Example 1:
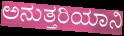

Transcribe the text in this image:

ಅನುತ್ತರಿಯಾನಿ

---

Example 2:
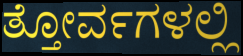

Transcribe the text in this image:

ತ್ತೋರ್ವಗಳಲ್ಲಿ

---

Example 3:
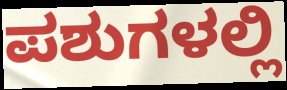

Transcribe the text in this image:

ಪಶುಗಳಲ್ಲಿ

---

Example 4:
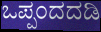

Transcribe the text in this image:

ಒಪ್ಪಂದದಡಿ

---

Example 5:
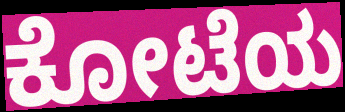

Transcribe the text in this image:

ಕೋಟೆಯ